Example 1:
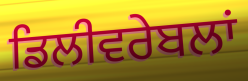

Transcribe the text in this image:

ਡਿਲੀਵਰੇਬਲਾਂ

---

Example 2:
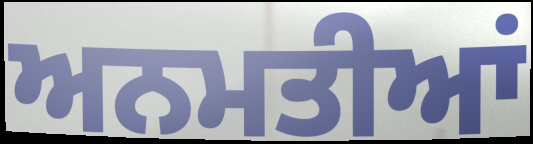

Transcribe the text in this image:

ਅਨਮਤੀਆਂ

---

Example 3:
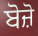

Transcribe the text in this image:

ਬੋਜ਼ੋ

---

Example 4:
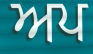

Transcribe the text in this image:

ਅਪ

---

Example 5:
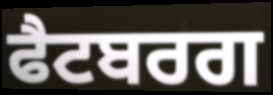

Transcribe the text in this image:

ਫੈਟਬਰਗ